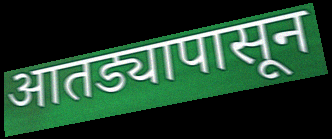
आतड्यापासून